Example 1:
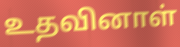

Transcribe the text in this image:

உதவினாள்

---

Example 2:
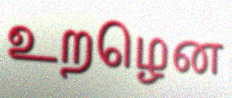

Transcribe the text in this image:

உறழென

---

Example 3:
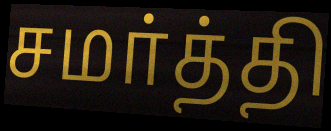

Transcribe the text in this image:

சமர்த்தி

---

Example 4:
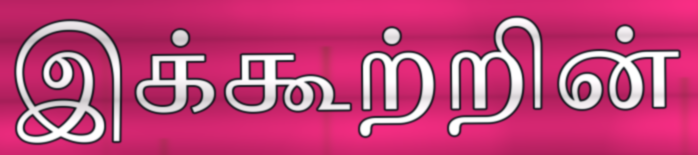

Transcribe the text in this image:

இக்கூற்றின்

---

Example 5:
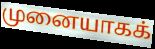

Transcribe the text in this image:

முனையாகக்